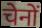
चेनों